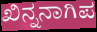
ಖಿನ್ನನಾಗಿಪ